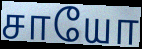
சாயோ